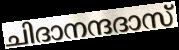
ചിദാനന്ദദാസ്